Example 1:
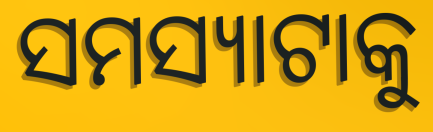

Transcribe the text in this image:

ସମସ୍ୟାଟାକୁ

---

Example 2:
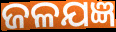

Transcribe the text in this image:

ଜଳଯଜ୍ଞ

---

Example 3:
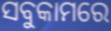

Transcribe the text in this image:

ସବୁକାମରେ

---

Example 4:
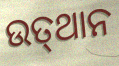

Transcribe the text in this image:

ଉତ୍‍ଥାନ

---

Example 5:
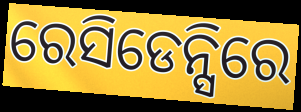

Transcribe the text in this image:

ରେସିଡେନ୍ସିରେ